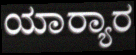
ಯಾರ‍್ಯಾರ